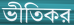
ভীতিকর